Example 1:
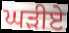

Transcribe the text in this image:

ਘੜੀਏ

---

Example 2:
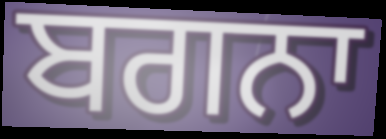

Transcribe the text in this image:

ਬਗਨਾ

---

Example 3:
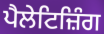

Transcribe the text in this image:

ਪੈਲੇਟਿਜ਼ਿੰਗ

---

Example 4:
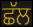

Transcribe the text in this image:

ਛੱਲ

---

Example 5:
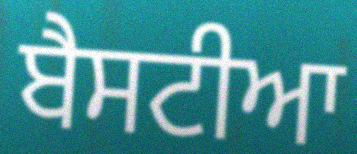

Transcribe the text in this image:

ਬੈਸਟੀਆ